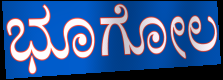
ಭೂಗೋಲ